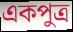
একপুত্র